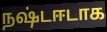
நஷ்டஈடாக